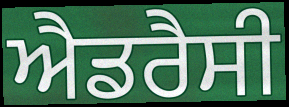
ਐਡਰੈਸੀ